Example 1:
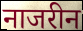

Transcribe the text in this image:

नाजरीन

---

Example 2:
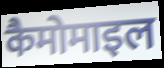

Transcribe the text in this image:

कैमोमाइल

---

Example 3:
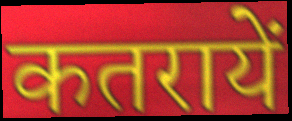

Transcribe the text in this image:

कतरायें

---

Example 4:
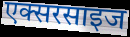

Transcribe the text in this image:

एक्‍सरसाइज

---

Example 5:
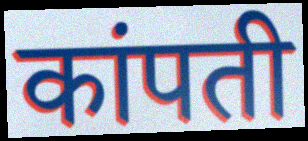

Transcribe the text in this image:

कांपती